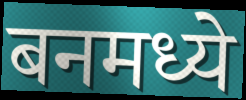
बनमध्ये